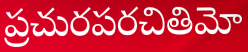
ప్రచురపరచితిమో